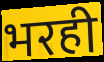
भरही